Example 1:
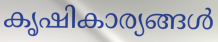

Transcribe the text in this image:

കൃഷികാര്യങ്ങൾ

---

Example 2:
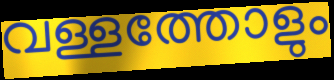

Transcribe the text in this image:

വള്ളത്തോളും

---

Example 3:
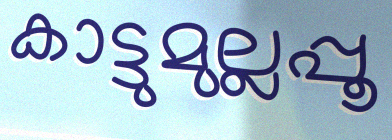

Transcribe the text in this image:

കാട്ടുമുല്ലപ്പൂ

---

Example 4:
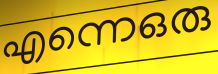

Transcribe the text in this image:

എന്നെഒരു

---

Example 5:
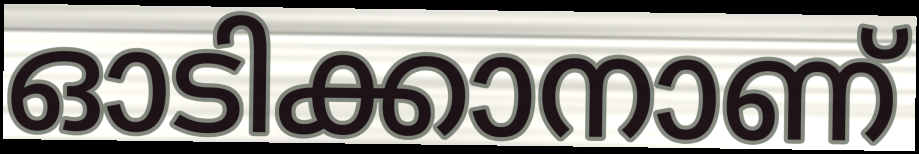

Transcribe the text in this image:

ഓടിക്കാനാണ്